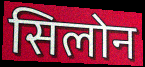
सिलोन